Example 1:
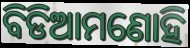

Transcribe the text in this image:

ବିଡିଆମଣୋହି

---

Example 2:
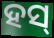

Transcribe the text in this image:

ହସ୍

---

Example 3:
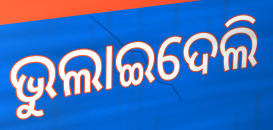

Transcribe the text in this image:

ଭୁଲାଇଦେଲି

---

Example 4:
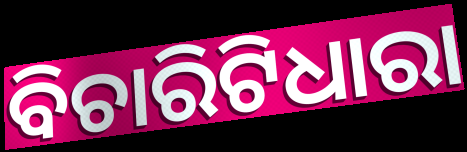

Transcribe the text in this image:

ବିଚାରିଟିଧାରା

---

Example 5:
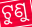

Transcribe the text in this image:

ଟୁଣୁ